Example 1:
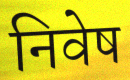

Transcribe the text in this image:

निवेष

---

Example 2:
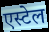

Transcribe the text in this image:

एस्टेल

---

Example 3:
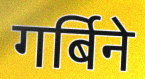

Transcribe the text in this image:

गर्बिने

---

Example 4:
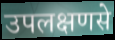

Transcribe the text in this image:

उपलक्षणसे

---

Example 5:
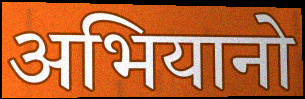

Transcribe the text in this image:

अभियानो